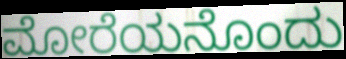
ಮೋರೆಯನೊಂದು